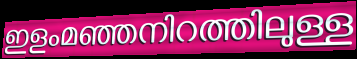
ഇളംമഞ്ഞനിറത്തിലുള്ള